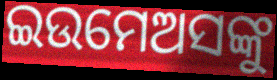
ଇଉମେଅସଙ୍କୁ